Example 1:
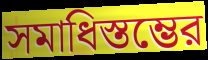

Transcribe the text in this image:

সমাধিস্তম্ভের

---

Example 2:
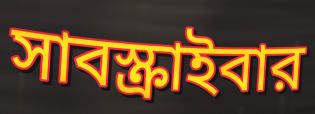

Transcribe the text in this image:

সাবস্ক্রাইবার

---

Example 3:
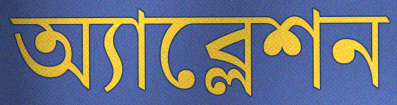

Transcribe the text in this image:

অ্যাব্লেশন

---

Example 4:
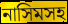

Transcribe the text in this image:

নাসিমসহ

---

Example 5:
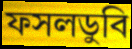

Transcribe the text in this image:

ফসলডুবি